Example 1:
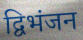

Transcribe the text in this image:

द्विभंजन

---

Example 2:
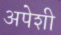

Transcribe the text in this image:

अपेशी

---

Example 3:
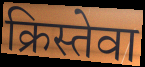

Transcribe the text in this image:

क्रिस्तेवा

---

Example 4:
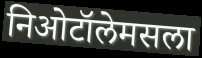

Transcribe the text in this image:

निओटॉलेमसला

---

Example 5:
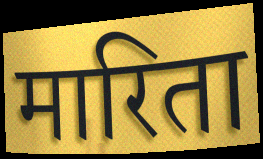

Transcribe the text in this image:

मारिता